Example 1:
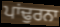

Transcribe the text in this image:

ਪਾਂਢੁਰਨਾ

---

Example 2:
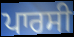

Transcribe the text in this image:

ਪਾਰਸੀ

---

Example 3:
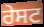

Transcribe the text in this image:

ਰੇਸਟ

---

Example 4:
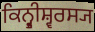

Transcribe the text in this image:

ਕਿਨ੍ਤ੍ਵੀਸ਼੍ਵਰਸ੍ਯ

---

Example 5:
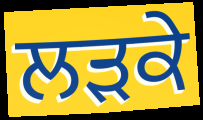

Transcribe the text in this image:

ਲਡ਼ਕੇ